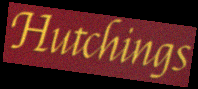
Hutchings